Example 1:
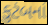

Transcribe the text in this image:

કુટંબનાં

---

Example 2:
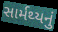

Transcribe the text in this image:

સાર્મથ્યનું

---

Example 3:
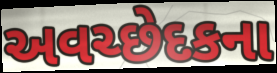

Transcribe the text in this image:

અવચ્છેદકના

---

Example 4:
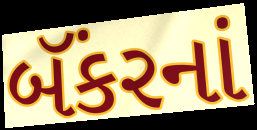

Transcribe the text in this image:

બૅંકરનાં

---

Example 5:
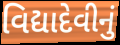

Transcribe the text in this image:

વિદ્યાદેવીનું